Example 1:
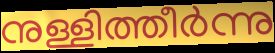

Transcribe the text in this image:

നുള്ളിത്തീർന്നു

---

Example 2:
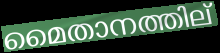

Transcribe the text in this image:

മൈതാനത്തില്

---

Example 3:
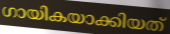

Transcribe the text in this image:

ഗായികയാക്കിയത്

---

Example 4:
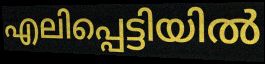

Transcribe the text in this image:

എലിപ്പെട്ടിയിൽ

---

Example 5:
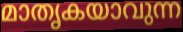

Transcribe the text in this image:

മാതൃകയാവുന്ന